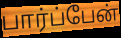
பார்ப்பேன்